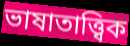
ভাষাতাত্ত্বিক